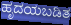
ಹೃದಯಬಡಿತ